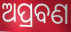
ଅପ୍ରବଣ